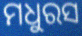
ମଧୁରସ